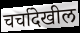
चर्चादेखील